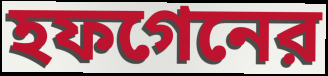
হফগেনের